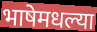
भाषेमधल्या